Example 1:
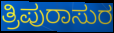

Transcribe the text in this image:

ತ್ರಿಪುರಾಸುರ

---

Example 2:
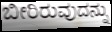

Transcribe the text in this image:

ಬೀರಿರುವುದನ್ನು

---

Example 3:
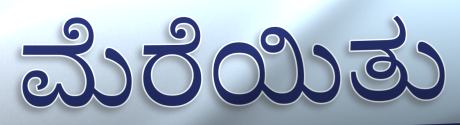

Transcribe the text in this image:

ಮೆರೆಯಿತು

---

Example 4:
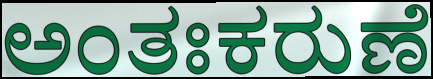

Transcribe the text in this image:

ಅಂತಃಕರುಣೆ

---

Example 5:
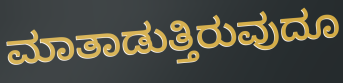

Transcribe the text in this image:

ಮಾತಾಡುತ್ತಿರುವುದೂ